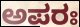
ಅಪರಃ